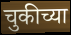
चुकीच्या